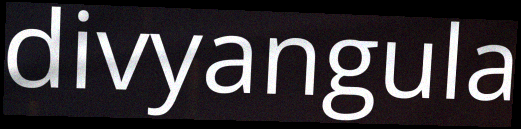
divyangula